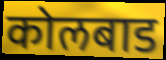
कोलबाड